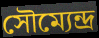
সৌম্যেন্দ্র